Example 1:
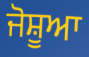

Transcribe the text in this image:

ਜੋਸ਼ੂਆ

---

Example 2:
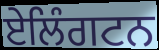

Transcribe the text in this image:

ਏਲਿੰਗਟਨ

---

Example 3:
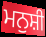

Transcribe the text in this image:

ਮਨੁਸ਼ੀ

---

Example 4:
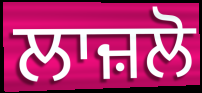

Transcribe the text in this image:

ਲਾਜ਼ਲੋ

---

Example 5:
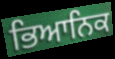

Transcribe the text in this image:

ਭਿਆਨਿਕ